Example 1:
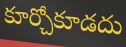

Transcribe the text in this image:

కూర్చోకూడదు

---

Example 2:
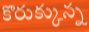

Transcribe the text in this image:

కొరుక్కున్న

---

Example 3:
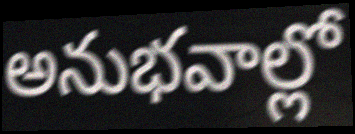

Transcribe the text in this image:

అనుభవాల్లో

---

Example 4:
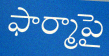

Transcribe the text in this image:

ఫార్మాపై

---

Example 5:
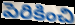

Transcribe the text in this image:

పెరికించి